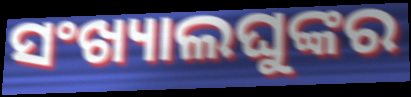
ସଂଖ୍ୟାଲଘୁଙ୍କର